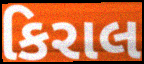
કિરાલ